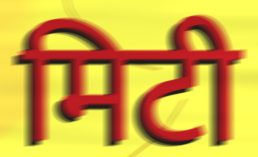
मिटी